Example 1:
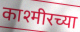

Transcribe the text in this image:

काश्मीरच्या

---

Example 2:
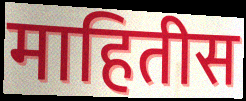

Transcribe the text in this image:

माहितीस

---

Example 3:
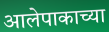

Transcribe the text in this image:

आलेपाकाच्या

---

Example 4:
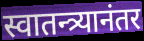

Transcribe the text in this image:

स्वातन्त्र्यानंतर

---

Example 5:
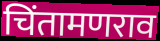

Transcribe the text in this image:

चिंतामणराव